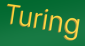
Turing